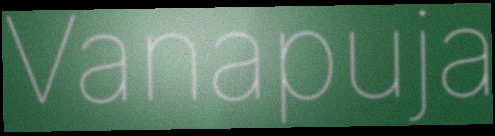
Vanapuja